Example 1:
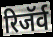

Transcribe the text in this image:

रिजॅर्व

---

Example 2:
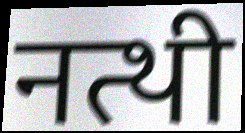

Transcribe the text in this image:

नत्थी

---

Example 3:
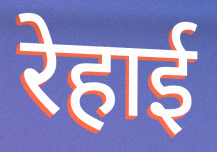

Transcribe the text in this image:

रेहाई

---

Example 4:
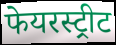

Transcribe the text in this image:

फेयरस्ट्रीट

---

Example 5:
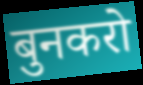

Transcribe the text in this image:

बुनकरो